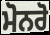
ਮੋਨਰੋ